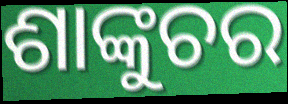
ଶାଙ୍କୁଚର